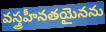
వస్త్రహీనతయైనను